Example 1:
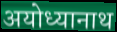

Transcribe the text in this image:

अयोध्यानाथ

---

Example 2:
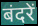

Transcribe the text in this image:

बंदरें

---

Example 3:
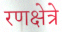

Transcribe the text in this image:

रणक्षेत्रे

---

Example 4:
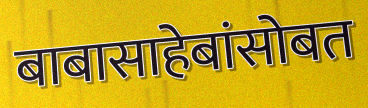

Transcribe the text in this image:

बाबासाहेबांसोबत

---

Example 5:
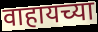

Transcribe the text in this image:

वाहायच्या